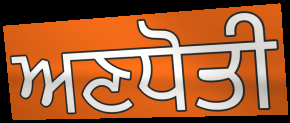
ਅਣਧੋਤੀ